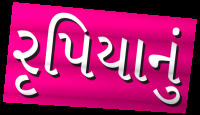
રૃપિયાનું